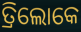
ତ୍ରିଲୋକେ